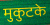
मुकुटके